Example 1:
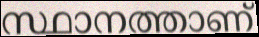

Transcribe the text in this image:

സ്ഥാനത്താണ്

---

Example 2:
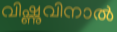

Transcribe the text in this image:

വിഷ്ണുവിനാൽ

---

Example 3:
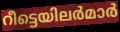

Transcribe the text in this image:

റീട്ടെയിലർമാർ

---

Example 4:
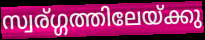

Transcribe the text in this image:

സ്വര്ഗ്ഗത്തിലേയ്ക്കു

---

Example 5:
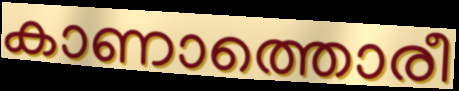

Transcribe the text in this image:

കാണാത്തൊരീ